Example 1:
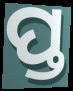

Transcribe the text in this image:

ପ୍ତ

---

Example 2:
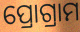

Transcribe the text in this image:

ପ୍ରୋଗ୍ରାମ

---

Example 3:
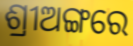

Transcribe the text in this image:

ଶ୍ରୀଅଙ୍ଗରେ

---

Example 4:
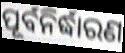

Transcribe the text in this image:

ପୂର୍ବନିର୍ଦ୍ଧାରଣ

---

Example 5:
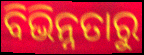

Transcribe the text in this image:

ବିଭିନ୍ନତାରୁ